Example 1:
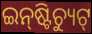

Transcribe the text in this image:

ଇନ୍‌ଷ୍ଟିଚ୍ୟୁଟ୍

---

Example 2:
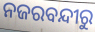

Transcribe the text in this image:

ନଜରବନ୍ଦୀରୁ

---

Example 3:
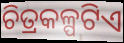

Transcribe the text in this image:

ଚିତ୍ରକଳ୍ପଟିଏ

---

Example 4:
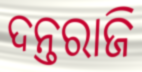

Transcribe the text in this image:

ଦନ୍ତରାଜି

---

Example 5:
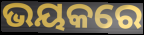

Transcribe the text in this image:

ଭୟକରେ